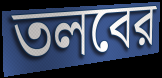
তলবের